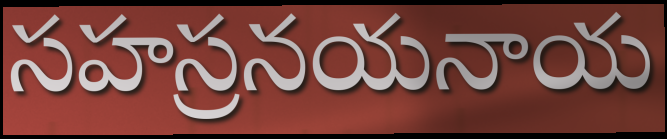
సహస్రనయనాయ